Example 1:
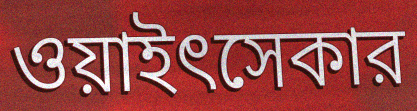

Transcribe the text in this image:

ওয়াইৎসেকার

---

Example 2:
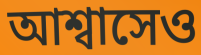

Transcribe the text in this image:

আশ্বাসেও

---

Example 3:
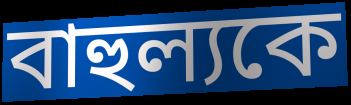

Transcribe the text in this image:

বাহুল্যকে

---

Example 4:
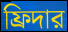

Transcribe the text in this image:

ফ্রিদার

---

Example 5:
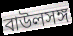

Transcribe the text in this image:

বাউলসঙ্গ